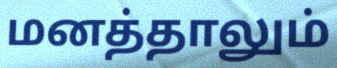
மனத்தாலும்